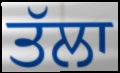
ਤੱਲਾ